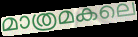
മാത്രമകലെ